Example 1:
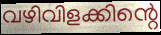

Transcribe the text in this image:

വഴിവിളക്കിന്റെ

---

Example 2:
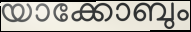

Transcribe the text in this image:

യാക്കോബും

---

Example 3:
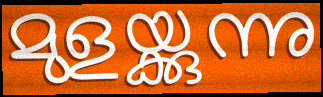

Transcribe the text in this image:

മുളയ്ക്കുന്നു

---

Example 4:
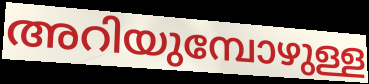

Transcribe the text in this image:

അറിയുമ്പോഴുള്ള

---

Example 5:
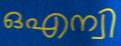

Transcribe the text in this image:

ഒഎന്വി